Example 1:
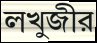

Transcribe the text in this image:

লখুজীর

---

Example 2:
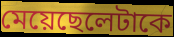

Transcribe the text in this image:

মেয়েছেলেটাকে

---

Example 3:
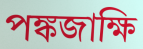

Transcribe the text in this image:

পঙ্কজাক্ষি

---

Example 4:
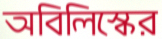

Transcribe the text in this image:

অবিলিস্কের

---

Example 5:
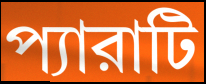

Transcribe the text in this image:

প্যারাটি